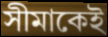
সীমাকেই